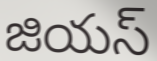
జియస్